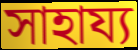
সাহায্য